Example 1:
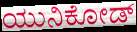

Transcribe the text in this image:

ಯುನಿಕೋಡ್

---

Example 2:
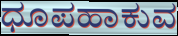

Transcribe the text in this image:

ಧೂಪಹಾಕುವ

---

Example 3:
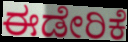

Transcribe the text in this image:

ಈಡೇರಿಕೆ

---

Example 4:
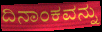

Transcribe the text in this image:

ದಿನಾಂಕವನ್ನು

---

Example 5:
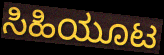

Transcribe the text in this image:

ಸಿಹಿಯೂಟ